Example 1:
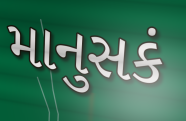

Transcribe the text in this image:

માનુસકં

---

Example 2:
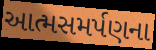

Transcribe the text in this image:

આત્મસમર્પણના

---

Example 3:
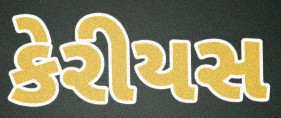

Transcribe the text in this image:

કેરીયસ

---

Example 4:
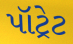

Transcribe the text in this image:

પૉટ્રેટ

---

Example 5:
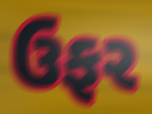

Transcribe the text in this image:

ઉફર